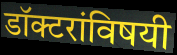
डॉक्टरांविषयी